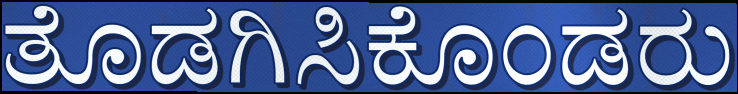
ತೊಡಗಿಸಿಕೊಂಡರು